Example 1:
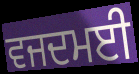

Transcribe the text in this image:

ਵਜਦਮਈ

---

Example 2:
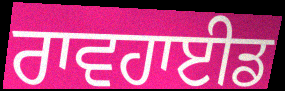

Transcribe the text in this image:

ਰਾਵਹਾਈਡ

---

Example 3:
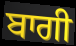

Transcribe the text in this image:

ਬਾਗੀ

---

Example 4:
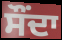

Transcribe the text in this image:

ਸੌਂਦਾ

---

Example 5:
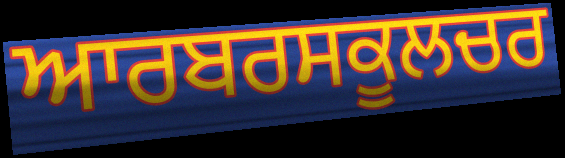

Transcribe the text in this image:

ਆਰਬਰਸਕੂਲਚਰ